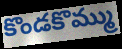
కొండకొమ్ము